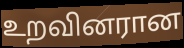
உறவினரான